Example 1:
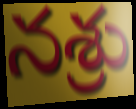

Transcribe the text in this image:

నశ్రు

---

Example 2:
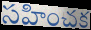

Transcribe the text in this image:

సహించక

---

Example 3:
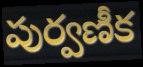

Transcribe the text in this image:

పుర్వణీక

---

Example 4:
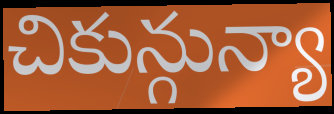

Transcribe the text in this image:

చికున్గున్యా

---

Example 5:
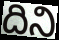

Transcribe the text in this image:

దిని